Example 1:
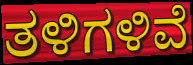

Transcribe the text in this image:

ತಳಿಗಳಿವೆ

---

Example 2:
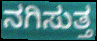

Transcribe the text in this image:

ನಗಿಸುತ್ತ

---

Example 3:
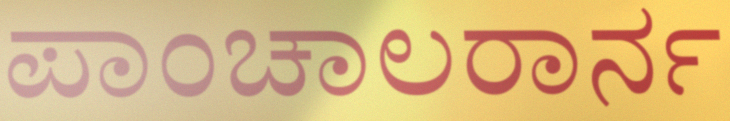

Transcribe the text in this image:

ಪಾಂಚಾಲರಾರ್ನ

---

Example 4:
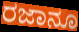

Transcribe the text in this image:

ರಜಾನೂ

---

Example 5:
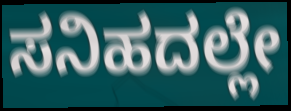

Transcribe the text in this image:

ಸನಿಹದಲ್ಲೇ